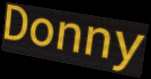
Donny